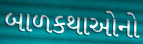
બાળકથાઓનો